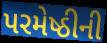
પરમેષ્ઠીની